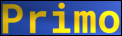
Primo